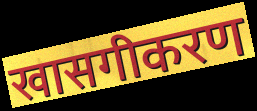
खासगीकरण